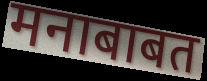
मनाबाबत